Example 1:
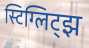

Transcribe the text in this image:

स्टिग्लिट्झ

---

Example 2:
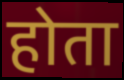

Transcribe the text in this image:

होता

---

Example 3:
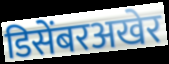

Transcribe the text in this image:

डिसेंबरअखेर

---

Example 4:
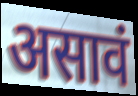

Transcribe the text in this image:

असावं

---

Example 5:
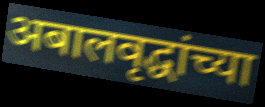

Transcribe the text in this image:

अबालवृद्धांच्या